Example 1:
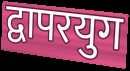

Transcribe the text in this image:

द्वापरयुग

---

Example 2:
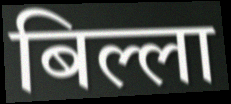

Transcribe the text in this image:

बिल्ला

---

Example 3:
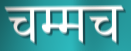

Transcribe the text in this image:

चम्मच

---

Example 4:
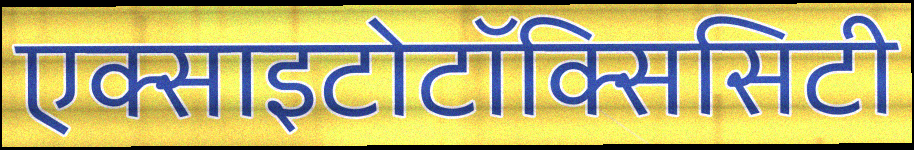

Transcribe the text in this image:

एक्साइटोटॉक्सिसिटी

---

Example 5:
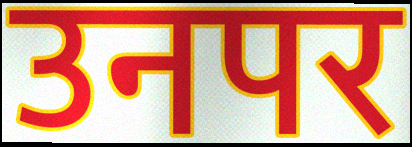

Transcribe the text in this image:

उनपर